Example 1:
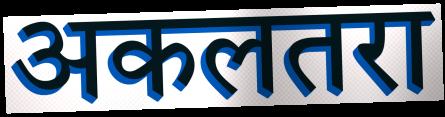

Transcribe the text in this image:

अकलतरा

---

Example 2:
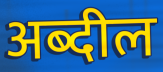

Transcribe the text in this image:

अब्दील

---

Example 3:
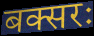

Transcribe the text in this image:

बक्सरः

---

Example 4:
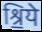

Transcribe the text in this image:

श्रि॒ये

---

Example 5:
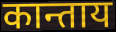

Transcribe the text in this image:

कान्ताय